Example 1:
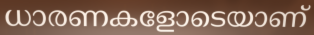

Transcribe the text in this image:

ധാരണകളോടെയാണ്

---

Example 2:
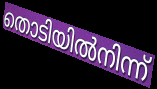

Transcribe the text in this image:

തൊടിയിൽനിന്ന്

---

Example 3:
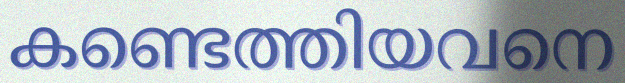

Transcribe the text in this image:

കണ്ടെത്തിയവനെ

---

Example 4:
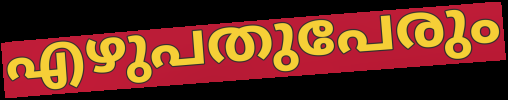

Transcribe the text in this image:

എഴുപതുപേരും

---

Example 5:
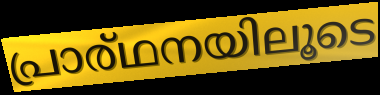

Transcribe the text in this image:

പ്രാര്ഥനയിലൂടെ